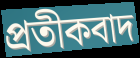
প্ৰতীকবাদ